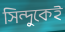
সিন্দুকেই